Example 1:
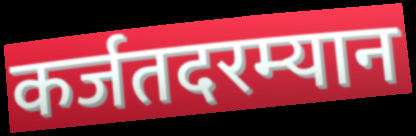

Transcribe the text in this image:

कर्जतदरम्यान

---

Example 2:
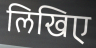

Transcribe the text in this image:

लिखिए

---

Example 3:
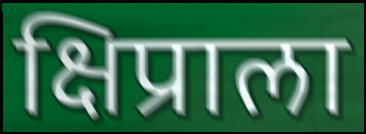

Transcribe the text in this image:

क्षिप्राला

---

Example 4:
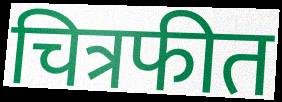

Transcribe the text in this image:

चित्रफीत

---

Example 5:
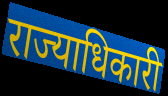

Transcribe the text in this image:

राज्याधिकारी